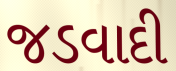
જડવાદી